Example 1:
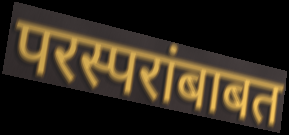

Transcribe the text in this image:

परस्परांबाबत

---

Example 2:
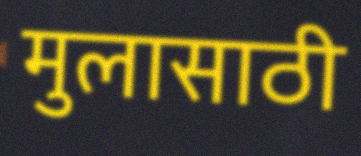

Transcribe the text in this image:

मुलासाठी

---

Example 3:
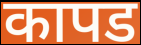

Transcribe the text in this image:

कापड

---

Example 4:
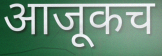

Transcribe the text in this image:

आजूकच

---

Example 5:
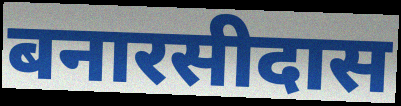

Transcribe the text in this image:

बनारसीदास